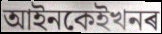
আইনকেইখনৰ